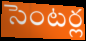
సెంటర్ల